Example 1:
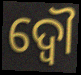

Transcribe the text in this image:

ଦ୍ଵୌ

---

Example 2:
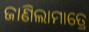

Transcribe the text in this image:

ଜାଣିଲାମାତ୍ରେ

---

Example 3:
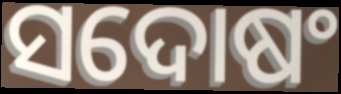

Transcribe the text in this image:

ସଦୋଷଂ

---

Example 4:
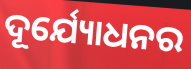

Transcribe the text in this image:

ଦୂର୍ଯ୍ୟୋଧନର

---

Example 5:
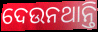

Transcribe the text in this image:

ଦେଉନଥାନ୍ତି